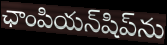
ఛాంపియన్‌షిప్‌ను